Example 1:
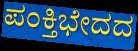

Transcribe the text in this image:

ಪಂಕ್ತಿಭೇದದ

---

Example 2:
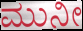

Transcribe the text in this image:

ಮುನೀ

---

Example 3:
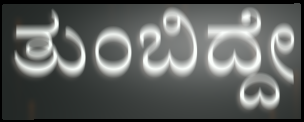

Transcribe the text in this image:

ತುಂಬಿದ್ದೇ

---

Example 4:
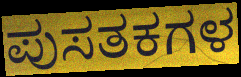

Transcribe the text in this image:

ಪುಸತಕಗಳ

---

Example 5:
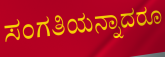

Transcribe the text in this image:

ಸಂಗತಿಯನ್ನಾದರೂ